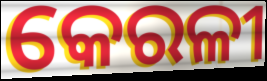
କେରଳୀ